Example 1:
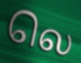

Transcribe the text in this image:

லெ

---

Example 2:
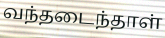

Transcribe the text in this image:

வந்தடைந்தாள்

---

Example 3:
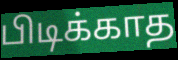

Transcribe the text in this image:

பிடிக்காத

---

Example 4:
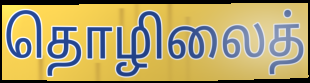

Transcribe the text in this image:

தொழிலைத்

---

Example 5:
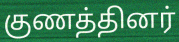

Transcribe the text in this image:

குணத்தினர்